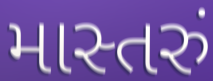
માસ્તરું